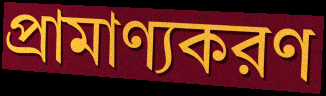
প্রামাণ্যকরণ